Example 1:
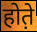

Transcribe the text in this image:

होत़े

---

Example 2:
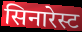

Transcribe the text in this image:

सिनारेस्ट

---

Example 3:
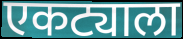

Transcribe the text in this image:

एकट्याला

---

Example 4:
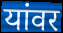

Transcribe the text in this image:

यांवर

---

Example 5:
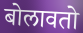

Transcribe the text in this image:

बोलावतो